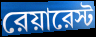
রেয়ারেস্ট